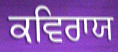
ਕਵਿਰਾਯ